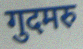
गुदमरु